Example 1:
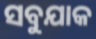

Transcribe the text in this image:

ସବୁଯାକ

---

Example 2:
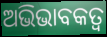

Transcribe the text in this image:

ଅଭିଭାବକତ୍ବ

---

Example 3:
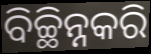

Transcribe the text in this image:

ବିଚ୍ଛିନ୍ନକରି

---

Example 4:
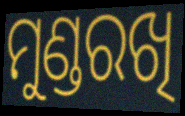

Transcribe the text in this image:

ମୁଣ୍ଡରଖି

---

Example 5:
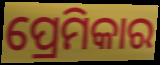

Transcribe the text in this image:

ପ୍ରେମିକାର